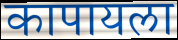
कापायला